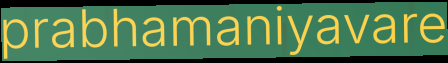
prabhamaniyavare